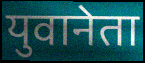
युवानेता